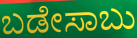
ಬಡೇಸಾಬು